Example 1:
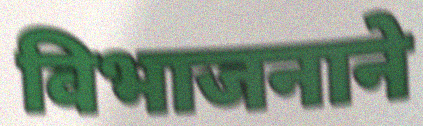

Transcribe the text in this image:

विभाजनाने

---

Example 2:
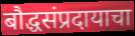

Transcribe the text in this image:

बौद्धसंप्रदायाचा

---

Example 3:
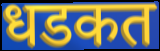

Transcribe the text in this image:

धडकत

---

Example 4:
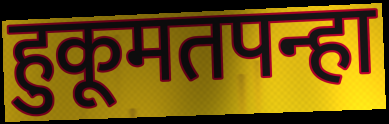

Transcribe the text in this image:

हुकूमतपन्हा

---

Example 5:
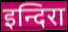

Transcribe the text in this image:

इन्दिरा